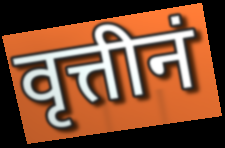
वृत्तीनं